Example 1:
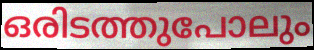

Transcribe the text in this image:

ഒരിടത്തുപോലും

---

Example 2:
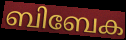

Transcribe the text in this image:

ബിബേക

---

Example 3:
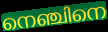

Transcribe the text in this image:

നെഞ്ചിനെ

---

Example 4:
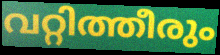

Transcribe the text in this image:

വറ്റിത്തീരും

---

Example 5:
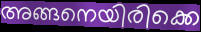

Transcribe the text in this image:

അങ്ങനെയിരിക്കെ